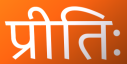
प्रीतिः